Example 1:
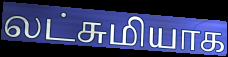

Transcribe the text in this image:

லட்சுமியாக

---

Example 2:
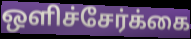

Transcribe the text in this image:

ஒளிச்சேர்க்கை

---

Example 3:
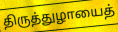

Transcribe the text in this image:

திருத்துழாயைத்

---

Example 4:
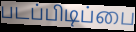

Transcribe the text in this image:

படப்பிடிப்பை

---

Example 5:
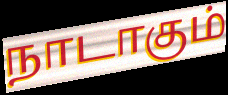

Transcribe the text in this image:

நாடாகும்